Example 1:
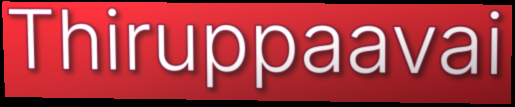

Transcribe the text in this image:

Thiruppaavai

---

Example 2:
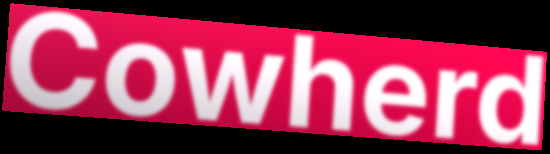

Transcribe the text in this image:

Cowherd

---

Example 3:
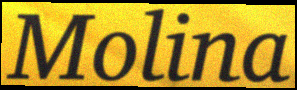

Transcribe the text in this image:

Molina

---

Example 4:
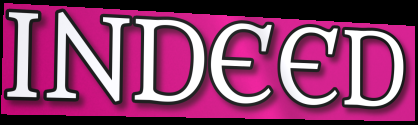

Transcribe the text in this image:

INDEED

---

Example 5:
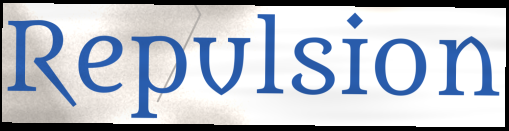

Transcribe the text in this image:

Repulsion